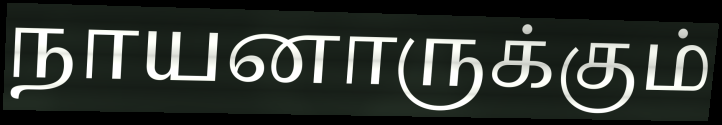
நாயனாருக்கும்